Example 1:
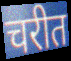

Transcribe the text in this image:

चरीत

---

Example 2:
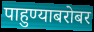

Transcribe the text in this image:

पाहुण्याबरोबर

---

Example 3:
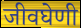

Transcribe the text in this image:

जीवघेणी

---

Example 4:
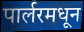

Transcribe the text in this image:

पार्लरमधून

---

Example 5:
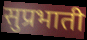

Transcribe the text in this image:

सुप्रभाती